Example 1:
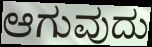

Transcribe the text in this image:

ಆಗುವುದು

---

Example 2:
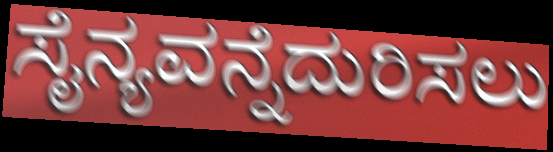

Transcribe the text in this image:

ಸೈನ್ಯವನ್ನೆದುರಿಸಲು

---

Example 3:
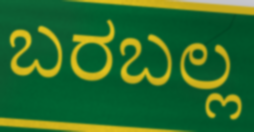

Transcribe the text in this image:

ಬರಬಲ್ಲ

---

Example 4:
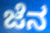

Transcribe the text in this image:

ಜೆನ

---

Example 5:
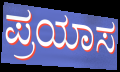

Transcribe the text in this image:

ಪ್ರಯಾಸ